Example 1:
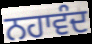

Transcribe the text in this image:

ਨਹਾਵੰਦ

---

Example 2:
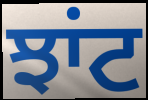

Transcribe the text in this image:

ਝਾਂਟ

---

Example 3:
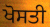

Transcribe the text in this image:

ਖੋਸਤੀ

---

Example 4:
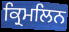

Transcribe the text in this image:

ਕ੍ਰਿਮਲਿਨ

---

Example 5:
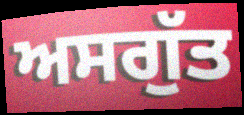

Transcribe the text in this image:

ਅਸਗੁੱਤ